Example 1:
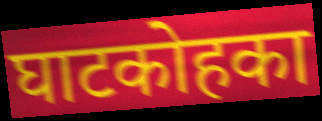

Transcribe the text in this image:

घाटकोहका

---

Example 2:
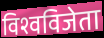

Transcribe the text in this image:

विश्वविजेता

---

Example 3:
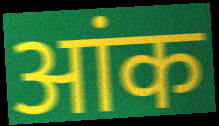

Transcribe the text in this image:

आंक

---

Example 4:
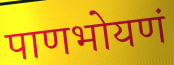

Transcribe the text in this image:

पाणभोयणं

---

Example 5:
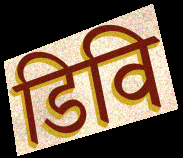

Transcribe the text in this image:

डिवि